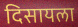
दिसायला